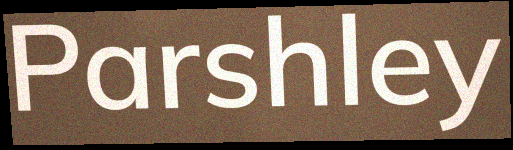
Parshley